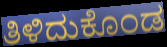
ತಿಳಿದುಕೊಂಡ